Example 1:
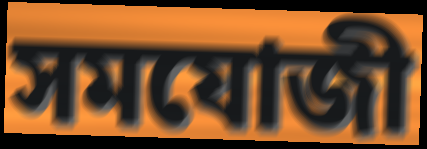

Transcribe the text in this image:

সমযোজী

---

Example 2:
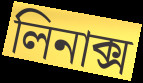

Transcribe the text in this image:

লিনাক্স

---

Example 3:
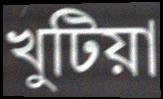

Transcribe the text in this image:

খুটিয়া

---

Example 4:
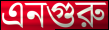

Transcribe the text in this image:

এনগুরু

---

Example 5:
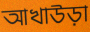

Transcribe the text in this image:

আখাউড়া